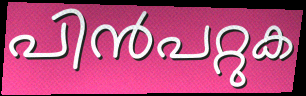
പിൻപറ്റുക